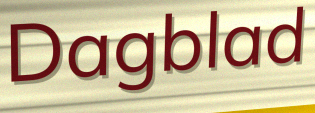
Dagblad